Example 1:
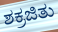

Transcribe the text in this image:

ಶಕ್ರಜಿತು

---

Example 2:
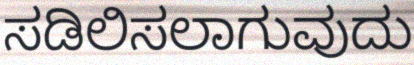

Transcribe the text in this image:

ಸಡಿಲಿಸಲಾಗುವುದು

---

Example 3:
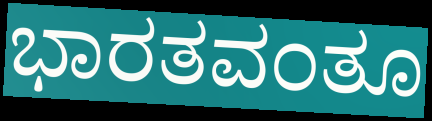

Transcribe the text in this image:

ಭಾರತವಂತೂ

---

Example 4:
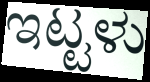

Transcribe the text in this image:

ಇಟ್ಟಳು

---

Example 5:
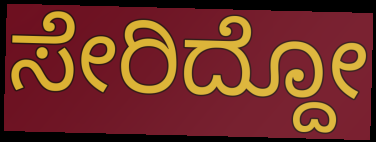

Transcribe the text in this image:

ಸೇರಿದ್ದೋ